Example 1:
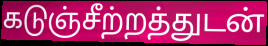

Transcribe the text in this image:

கடுஞ்சீற்றத்துடன்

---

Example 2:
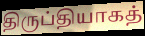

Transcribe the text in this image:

திருப்தியாகத்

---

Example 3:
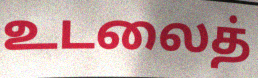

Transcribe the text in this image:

உடலைத்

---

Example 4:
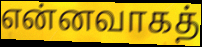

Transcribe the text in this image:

என்னவாகத்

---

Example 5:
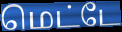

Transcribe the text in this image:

மெட்டே